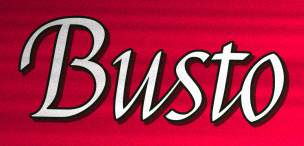
Busto